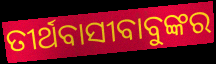
ତୀର୍ଥବାସୀବାବୁଙ୍କର